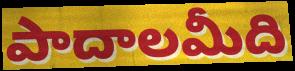
పాదాలమీది